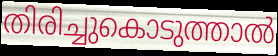
തിരിച്ചുകൊടുത്താൽ